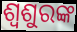
ଶ୍ୱଶୁରଙ୍କ